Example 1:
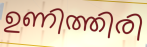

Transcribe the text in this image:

ഉണിത്തിരി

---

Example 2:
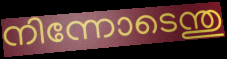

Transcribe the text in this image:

നിന്നോടെന്തു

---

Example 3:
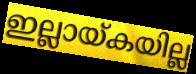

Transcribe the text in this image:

ഇല്ലായ്കയില്ല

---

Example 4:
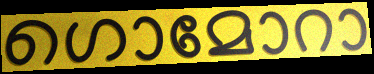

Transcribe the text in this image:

ഗൊമോറാ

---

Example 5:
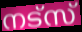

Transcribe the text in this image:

നട്സ്